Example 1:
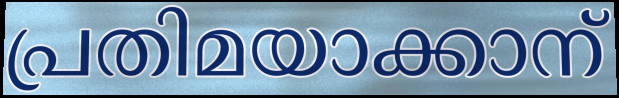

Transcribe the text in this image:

പ്രതിമയാക്കാന്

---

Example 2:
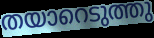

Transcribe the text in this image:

തയാറെടുത്തു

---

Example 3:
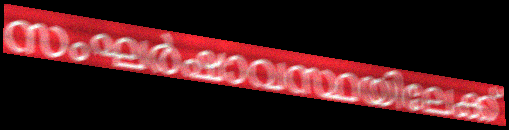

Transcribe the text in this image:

സംഘർഷാവസ്ഥയിലേക്ക്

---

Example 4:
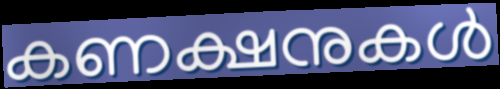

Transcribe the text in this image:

കണക്ഷനുകൾ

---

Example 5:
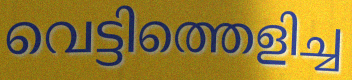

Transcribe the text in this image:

വെട്ടിത്തെളിച്ച